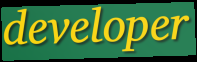
developer